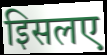
इिसलए